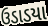
ઉડાડયા